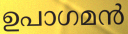
ഉപാഗമൻ